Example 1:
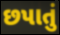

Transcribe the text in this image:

છપાતું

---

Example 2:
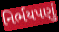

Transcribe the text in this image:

નિર્ભયપણું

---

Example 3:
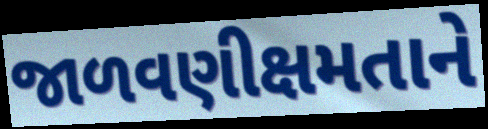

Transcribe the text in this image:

જાળવણીક્ષમતાને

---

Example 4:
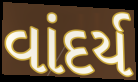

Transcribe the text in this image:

વાંદર્ય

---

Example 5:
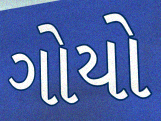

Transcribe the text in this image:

ગોયો